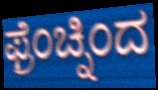
ಫ್ರೆಂಚ್ನಿಂದ